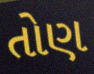
તોણ